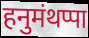
हनुमंथप्पा